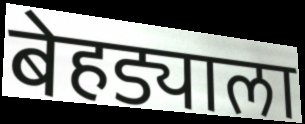
बेहड्याला